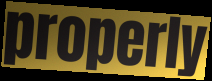
properly